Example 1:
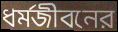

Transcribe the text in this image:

ধর্মজীবনের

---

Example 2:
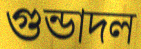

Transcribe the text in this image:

গুন্ডাদল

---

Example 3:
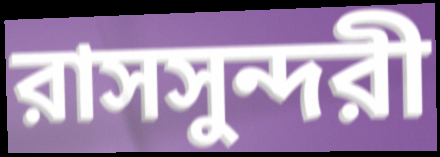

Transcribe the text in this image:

রাসসুন্দরী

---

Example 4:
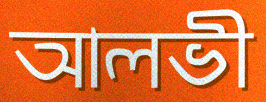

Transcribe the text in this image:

আলভী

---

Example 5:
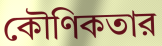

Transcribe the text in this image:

কৌণিকতার